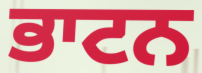
ਭਾਟਨ